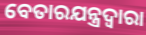
ବେତାରଯନ୍ତ୍ରଦ୍ୱାରା